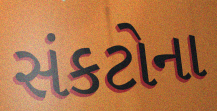
સંકટોના